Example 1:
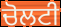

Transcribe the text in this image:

ਚੋਲਟੀ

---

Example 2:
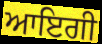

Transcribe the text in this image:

ਆਇਗੀ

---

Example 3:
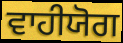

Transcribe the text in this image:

ਵਾਹੀਯੋਗ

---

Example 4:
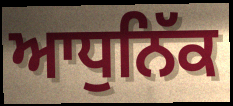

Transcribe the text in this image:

ਆਧੁਨਿੱਕ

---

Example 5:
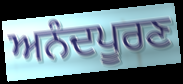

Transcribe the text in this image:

ਅਨੰਦਪੂਰਣ